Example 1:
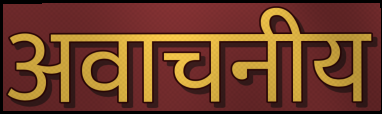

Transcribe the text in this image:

अवाचनीय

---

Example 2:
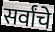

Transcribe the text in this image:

सर्वांचे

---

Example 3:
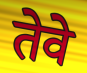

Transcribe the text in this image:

तेवे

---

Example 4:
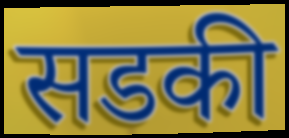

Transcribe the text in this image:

सडकी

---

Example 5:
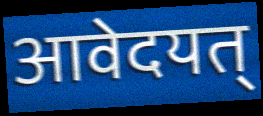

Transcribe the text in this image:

आवेदयत्